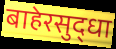
बाहेरसुद्धा